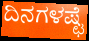
ದಿನಗಳಷ್ಟೆ